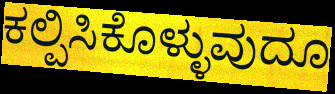
ಕಲ್ಪಿಸಿಕೊಳ್ಳುವುದೂ